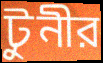
টুনীর